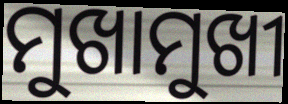
ମୁଖାମୁଖୀ